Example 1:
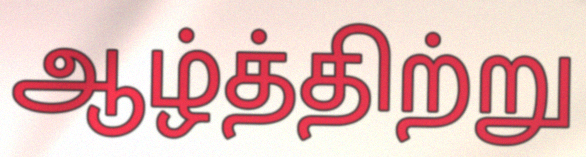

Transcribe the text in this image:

ஆழ்த்திற்று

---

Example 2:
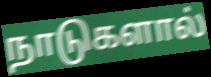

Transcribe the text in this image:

நாடுகளால்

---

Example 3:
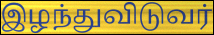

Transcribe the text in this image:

இழந்துவிடுவர்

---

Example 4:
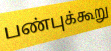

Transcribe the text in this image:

பண்புக்கூறு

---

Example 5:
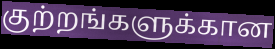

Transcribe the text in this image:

குற்றங்களுக்கான